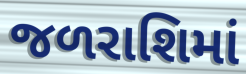
જળરાશિમાં